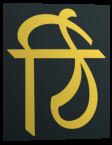
ঠি